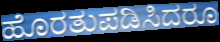
ಹೊರತುಪಡಿಸಿದರೂ